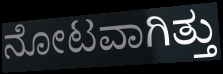
ನೋಟವಾಗಿತ್ತು